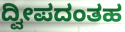
ದ್ವೀಪದಂತಹ